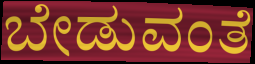
ಬೇಡುವಂತೆ